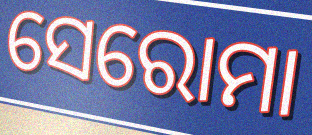
ସେରୋମା